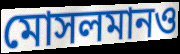
মোসলমানও